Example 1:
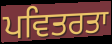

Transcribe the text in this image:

ਪਵਿਤਰਤਾ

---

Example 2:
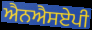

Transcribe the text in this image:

ਐਨਐਸਏਪੀ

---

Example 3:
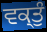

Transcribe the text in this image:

ਵਕ੍ਤੁੰ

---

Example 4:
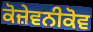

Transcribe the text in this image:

ਕੋਜ਼ੇਵਨੀਕੋਵ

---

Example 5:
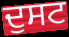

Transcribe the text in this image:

ਦੁਸਟ